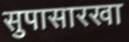
सुपासारखा